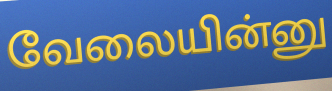
வேலையின்னு